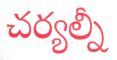
చర్యల్నీ